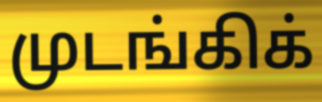
முடங்கிக்